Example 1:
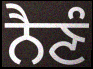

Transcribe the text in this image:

ਨੈਣੰ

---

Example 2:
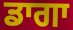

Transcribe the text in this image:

ਡਾਗਾ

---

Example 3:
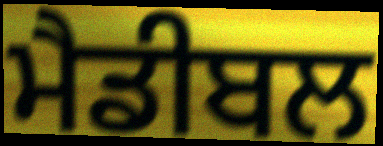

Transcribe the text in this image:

ਮੈਡੀਬਲ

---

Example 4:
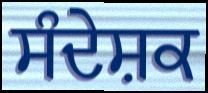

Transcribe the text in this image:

ਸੰਦੇਸ਼ਕ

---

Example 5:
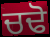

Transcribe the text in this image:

ਚਢੋ